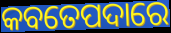
କବତେପଦାରେ